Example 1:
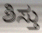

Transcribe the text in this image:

ಶಿಸ್ತು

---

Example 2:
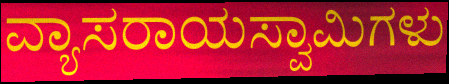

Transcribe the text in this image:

ವ್ಯಾಸರಾಯಸ್ವಾಮಿಗಳು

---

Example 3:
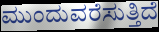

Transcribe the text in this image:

ಮುಂದುವರೆಸುತ್ತಿದೆ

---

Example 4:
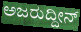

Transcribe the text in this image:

ಅಜರುದ್ದೀನ್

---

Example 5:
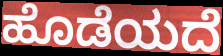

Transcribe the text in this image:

ಹೊಡೆಯದೆ